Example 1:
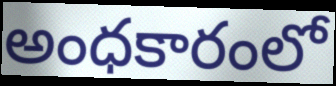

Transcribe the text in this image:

అంధకారంలో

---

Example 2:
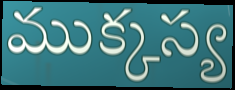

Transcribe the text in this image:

ముక్కస్య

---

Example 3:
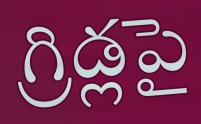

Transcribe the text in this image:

గ్రిడ్లపై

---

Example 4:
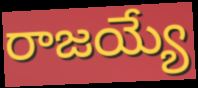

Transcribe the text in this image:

రాజయ్యే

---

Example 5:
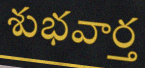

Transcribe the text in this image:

శుభవార్త